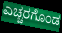
ಎಚ್ಚರಗೊಂಡ